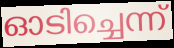
ഓടിച്ചെന്ന്